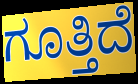
ಗೂತ್ತಿದೆ